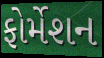
ફોર્મેશન